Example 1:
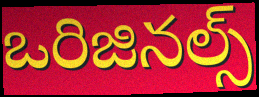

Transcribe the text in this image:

ఒరిజినల్స్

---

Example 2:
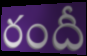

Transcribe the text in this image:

రందీ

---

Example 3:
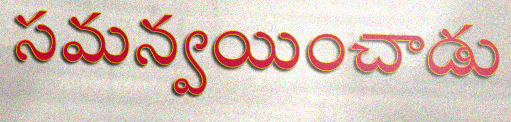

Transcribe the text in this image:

సమన్వయించాడు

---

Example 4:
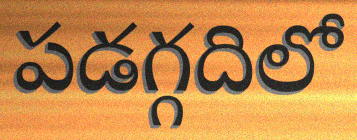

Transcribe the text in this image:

పడగ్గదిలో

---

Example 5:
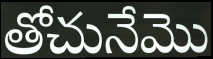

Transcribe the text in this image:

తోచునేమొ